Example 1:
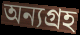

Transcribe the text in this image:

অন্যগ্রহ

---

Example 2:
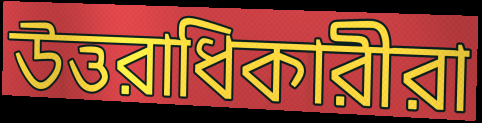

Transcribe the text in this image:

উত্তরাধিকারীরা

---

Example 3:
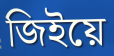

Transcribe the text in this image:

জিইয়ে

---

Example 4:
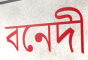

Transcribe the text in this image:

বনেদী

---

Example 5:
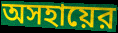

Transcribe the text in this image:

অসহায়ের